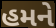
હમને